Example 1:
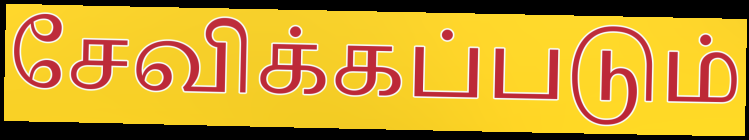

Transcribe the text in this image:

சேவிக்கப்படும்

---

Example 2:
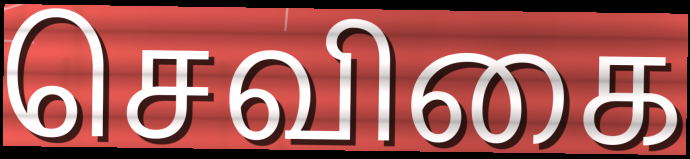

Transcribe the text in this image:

செவிகை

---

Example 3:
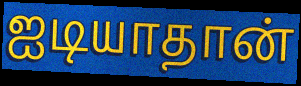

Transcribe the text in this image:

ஐடியாதான்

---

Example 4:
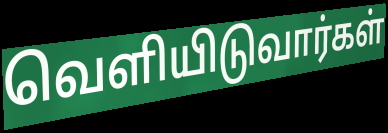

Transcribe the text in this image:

வெளியிடுவார்கள்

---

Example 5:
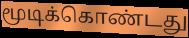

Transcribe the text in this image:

மூடிக்கொண்டது